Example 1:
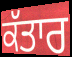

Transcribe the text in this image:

ਕੱਤਾਰ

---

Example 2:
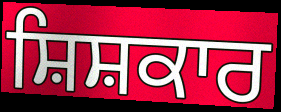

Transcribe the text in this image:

ਸ਼ਿਸ਼ਕਾਰ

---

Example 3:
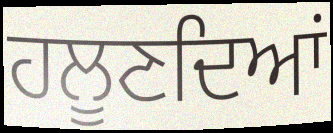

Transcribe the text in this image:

ਹਲੂਣਦਿਆਂ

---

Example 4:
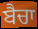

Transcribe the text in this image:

ਬੈਚਾ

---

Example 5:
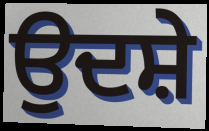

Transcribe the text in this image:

ਉਦਸ਼ੇ